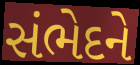
સંભેદને